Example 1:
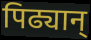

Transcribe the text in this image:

पिढ्यान्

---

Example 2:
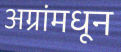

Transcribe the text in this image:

अग्रांमधून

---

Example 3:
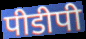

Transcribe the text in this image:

पीडीपी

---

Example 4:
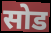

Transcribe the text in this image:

सोड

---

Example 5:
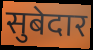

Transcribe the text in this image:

सुबेदार